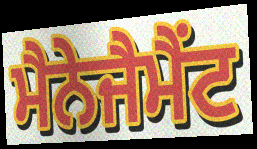
ਮੈਨੇਜੈਮੈਂਟ